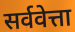
सर्ववेत्ता